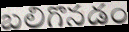
బలిగొనడం